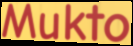
Mukto